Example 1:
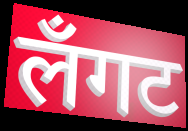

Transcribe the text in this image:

लँगट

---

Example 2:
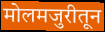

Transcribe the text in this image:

मोलमजुरीतून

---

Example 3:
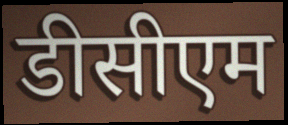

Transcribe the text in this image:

डीसीएम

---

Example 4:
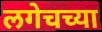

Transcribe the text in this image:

लगेचच्या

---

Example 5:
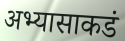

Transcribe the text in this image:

अभ्यासाकडं